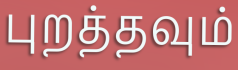
புறத்தவும்